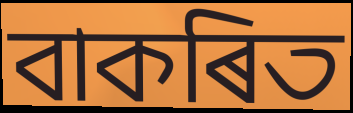
বাকৰিত